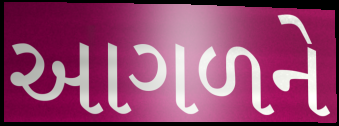
આગળને